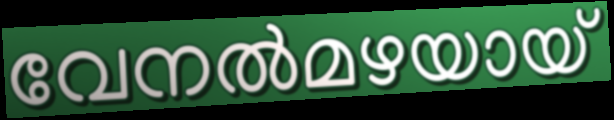
വേനൽമഴയായ്